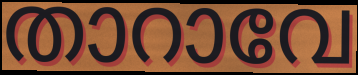
താറാവേ